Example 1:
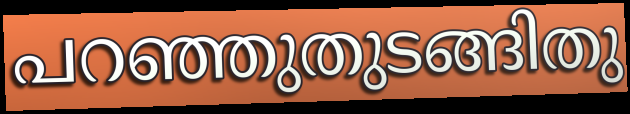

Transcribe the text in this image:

പറഞ്ഞുതുടങ്ങിതു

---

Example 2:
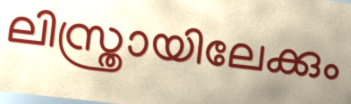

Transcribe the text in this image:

ലിസ്ത്രായിലേക്കും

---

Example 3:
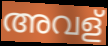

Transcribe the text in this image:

അവള്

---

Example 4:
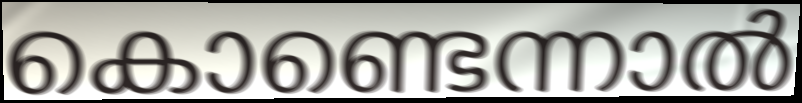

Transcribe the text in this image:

കൊണ്ടെന്നാൽ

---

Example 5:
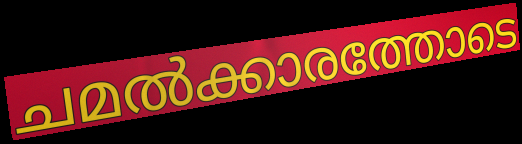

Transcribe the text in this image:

ചമൽക്കാരത്തോടെ